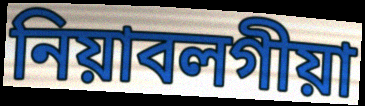
নিয়াবলগীয়া